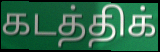
கடத்திக்